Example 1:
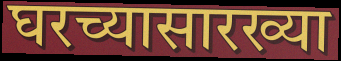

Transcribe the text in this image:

घरच्यासारख्या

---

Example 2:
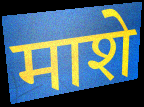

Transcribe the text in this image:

माशे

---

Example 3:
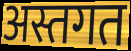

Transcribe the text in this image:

अस्तगत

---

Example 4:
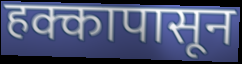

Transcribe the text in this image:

हक्कापासून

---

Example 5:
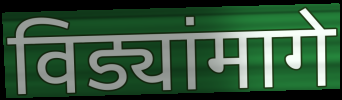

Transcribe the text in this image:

विड्यांमागे